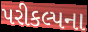
પરીકલ્પના